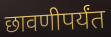
छावणीपर्यंत